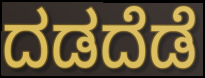
ದಡದೆಡೆ